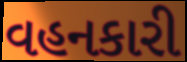
વહનકારી